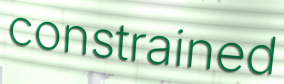
constrained